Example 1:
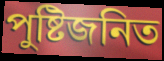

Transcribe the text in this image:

পুষ্টিজনিত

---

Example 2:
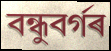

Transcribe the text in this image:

বন্ধুবৰ্গৰ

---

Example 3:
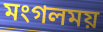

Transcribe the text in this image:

মংগলময়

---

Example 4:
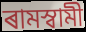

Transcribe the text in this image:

ৰামস্বামী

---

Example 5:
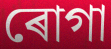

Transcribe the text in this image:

ৰোগা